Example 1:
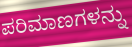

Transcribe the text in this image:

ಪರಿಮಾಣಗಳನ್ನು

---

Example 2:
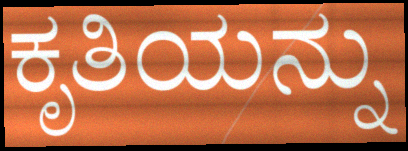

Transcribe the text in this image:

ಕೃತಿಯನ್ನು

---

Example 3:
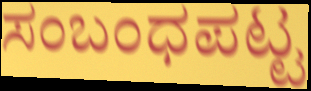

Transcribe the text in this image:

ಸಂಬಂಧಪಟ್ಟ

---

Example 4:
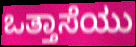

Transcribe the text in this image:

ಒತ್ತಾಸೆಯು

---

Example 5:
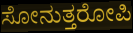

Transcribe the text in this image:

ಸೋನುತ್ತರೋಪಿ